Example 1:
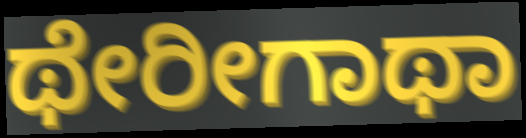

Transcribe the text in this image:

ಥೇರೀಗಾಥಾ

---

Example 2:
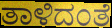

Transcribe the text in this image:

ತಾಳಿದಂತೆ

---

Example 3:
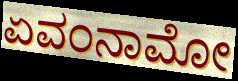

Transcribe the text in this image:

ಏವಂನಾಮೋ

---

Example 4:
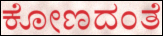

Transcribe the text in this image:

ಕೋಣದಂತೆ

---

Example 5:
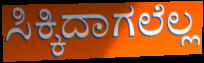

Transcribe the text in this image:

ಸಿಕ್ಕಿದಾಗಲೆಲ್ಲ